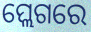
ପ୍ଲେଗରେ